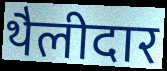
थैलीदार